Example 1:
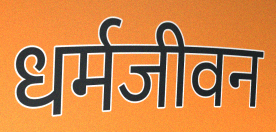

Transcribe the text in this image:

धर्मजीवन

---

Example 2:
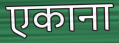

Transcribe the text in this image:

एकाना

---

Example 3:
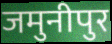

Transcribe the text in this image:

जमुनीपुर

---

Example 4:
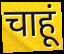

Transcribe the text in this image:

चाहूं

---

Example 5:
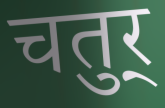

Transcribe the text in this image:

चतुर्